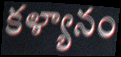
కళ్యానం